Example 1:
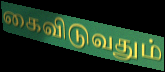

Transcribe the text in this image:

கைவிடுவதும்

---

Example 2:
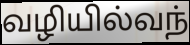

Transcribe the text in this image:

வழியில்வந்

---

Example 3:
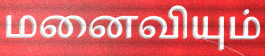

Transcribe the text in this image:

மனைவியும்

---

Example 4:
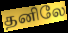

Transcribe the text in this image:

தனிலே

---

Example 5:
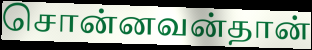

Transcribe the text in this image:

சொன்னவன்தான்